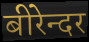
बीरेन्दर